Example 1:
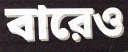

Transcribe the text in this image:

বারেও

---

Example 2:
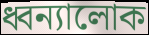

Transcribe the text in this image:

ধ্বন্যালোক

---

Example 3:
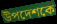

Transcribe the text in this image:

উপদেশকে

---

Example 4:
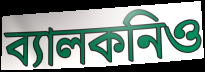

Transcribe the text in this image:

ব্যালকনিও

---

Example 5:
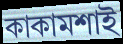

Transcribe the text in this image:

কাকামশাই